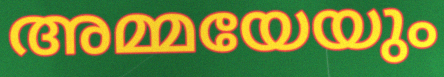
അമ്മയേയും